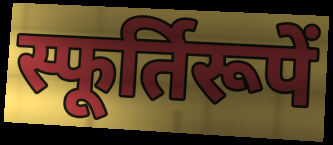
स्फूर्तिरूपें